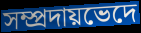
সম্প্রদায়ভেদে